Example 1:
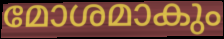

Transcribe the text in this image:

മോശമാകും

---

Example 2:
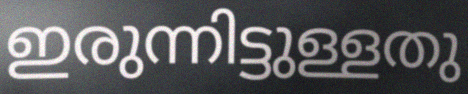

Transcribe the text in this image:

ഇരുന്നിട്ടുള്ളതു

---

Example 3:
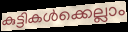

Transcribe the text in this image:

കുട്ടികൾക്കെല്ലാം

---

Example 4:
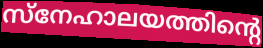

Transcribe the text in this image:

സ്നേഹാലയത്തിന്റെ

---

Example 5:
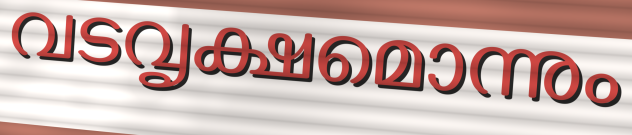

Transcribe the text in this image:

വടവൃക്ഷമൊന്നും